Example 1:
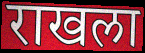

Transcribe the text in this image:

राखला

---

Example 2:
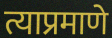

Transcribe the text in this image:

त्याप्रमाणे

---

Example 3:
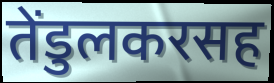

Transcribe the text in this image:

तेंडुलकरसह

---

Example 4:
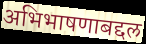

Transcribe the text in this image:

अभिभाषणाबद्दल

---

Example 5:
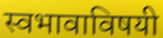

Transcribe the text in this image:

स्वभावाविषयी